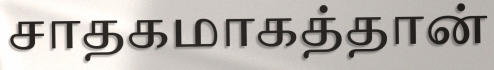
சாதகமாகத்தான்